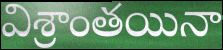
విశ్రాంతయినా